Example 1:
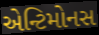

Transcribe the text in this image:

એન્ટિમોનસ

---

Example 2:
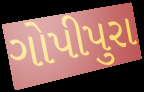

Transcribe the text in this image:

ગોપીપુરા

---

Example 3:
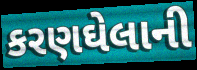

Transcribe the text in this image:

કરણઘેલાની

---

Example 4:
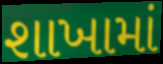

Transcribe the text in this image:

શાખામાં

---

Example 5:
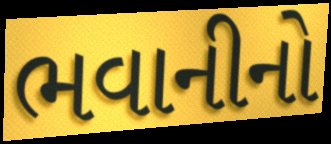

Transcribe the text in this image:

ભવાનીનો